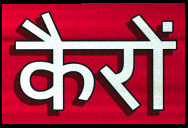
कैरों